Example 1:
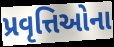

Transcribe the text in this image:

પ્રવૃત્તિઓના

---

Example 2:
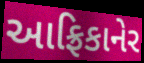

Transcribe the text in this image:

આફ્રિકાનેર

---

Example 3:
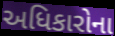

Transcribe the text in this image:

અધિકારોના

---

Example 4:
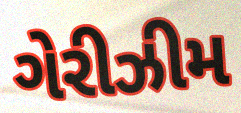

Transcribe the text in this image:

ગેરીઝીમ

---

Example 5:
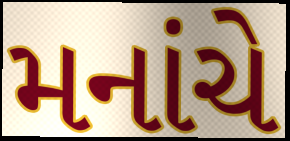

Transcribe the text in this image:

મનાંચે